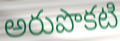
అరుపొకటి